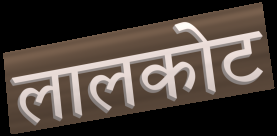
लालकोट